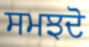
ਸਮਝਦੋ